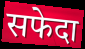
सफेदा